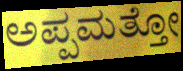
ಅಪ್ಪಮತ್ತೋ